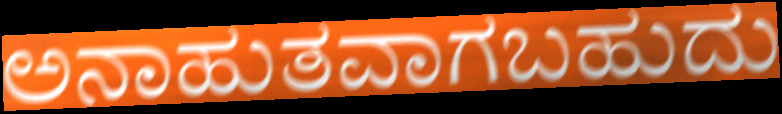
ಅನಾಹುತವಾಗಬಹುದು